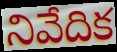
నివేదిక